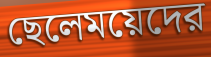
ছেলেময়েদের